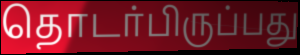
தொடர்பிருப்பது